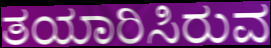
ತಯಾರಿಸಿರುವ